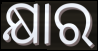
କ୍ଷାର